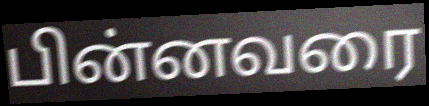
பின்னவரை